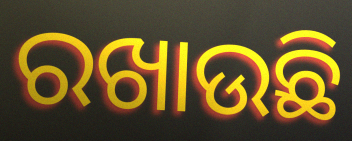
ରଖାଉଛି